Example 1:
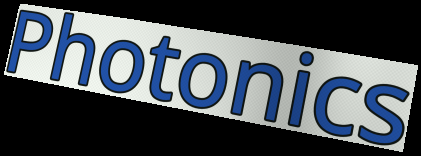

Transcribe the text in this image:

Photonics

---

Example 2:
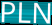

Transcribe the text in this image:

PLN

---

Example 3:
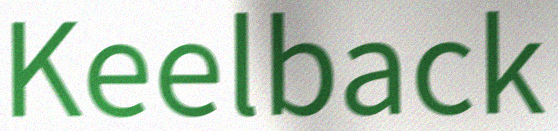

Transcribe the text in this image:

Keelback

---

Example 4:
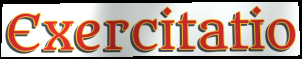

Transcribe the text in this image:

Exercitatio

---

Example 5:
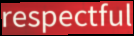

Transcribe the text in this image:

respectful